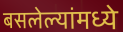
बसलेल्यांमध्ये